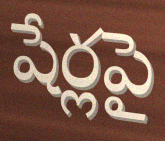
షేర్లపై